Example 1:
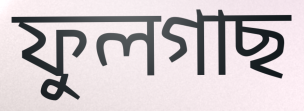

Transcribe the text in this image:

ফুলগাছ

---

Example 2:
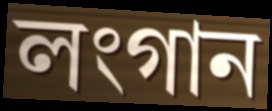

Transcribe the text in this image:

লংগান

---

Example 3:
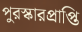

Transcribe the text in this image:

পুরস্কারপ্রাপ্তি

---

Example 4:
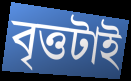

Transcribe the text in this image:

বৃত্তটাই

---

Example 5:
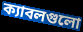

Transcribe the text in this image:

ক্যাবলগুলো